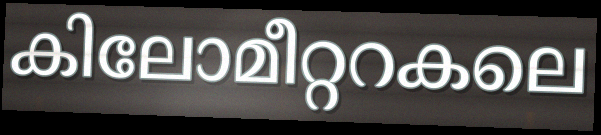
കിലോമീറ്ററകലെ